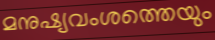
മനുഷ്യവംശത്തെയും